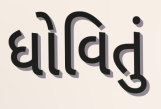
ધોવિતું